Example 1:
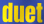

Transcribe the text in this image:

duet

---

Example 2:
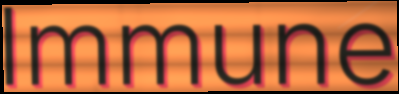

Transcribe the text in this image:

Immune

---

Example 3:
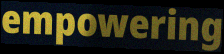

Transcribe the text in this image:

empowering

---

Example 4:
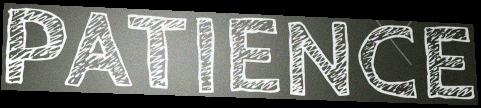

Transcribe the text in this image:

PATIENCE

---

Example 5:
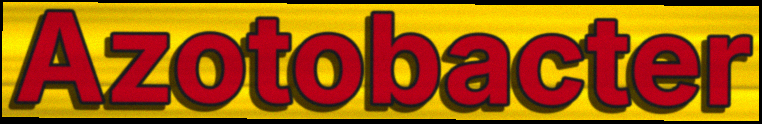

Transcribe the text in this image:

Azotobacter